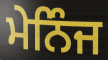
ਮੇਨਿੰਜ